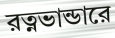
রত্নভান্ডারে